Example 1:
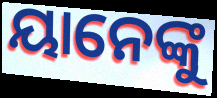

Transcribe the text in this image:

ୟାନେଙ୍କୁ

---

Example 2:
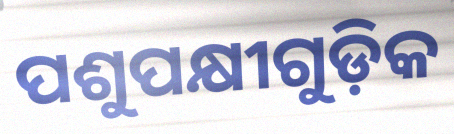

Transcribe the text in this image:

ପଶୁପକ୍ଷୀଗୁଡ଼ିକ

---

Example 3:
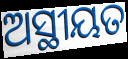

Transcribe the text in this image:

ଅସ୍ଥୀୟତ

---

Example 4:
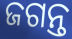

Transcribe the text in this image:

ଜଗନ୍ତ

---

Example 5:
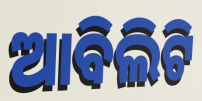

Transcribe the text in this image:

ଆବିଲିଟି